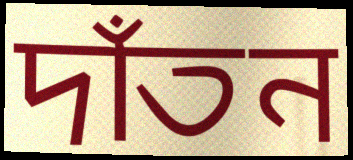
দাঁতন